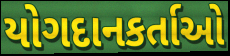
યોગદાનકર્તાઓ